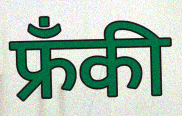
फ्रँकी